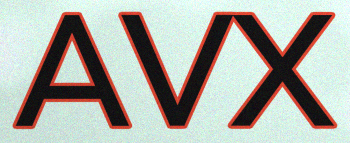
AVX